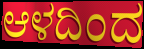
ಆಳದಿಂದ